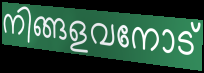
നിങ്ങളവനോട്